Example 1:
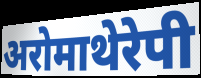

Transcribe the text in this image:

अरोमाथेरेपी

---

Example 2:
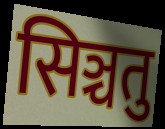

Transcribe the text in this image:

सिञ्चतु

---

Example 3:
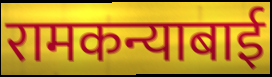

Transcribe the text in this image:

रामकन्याबाई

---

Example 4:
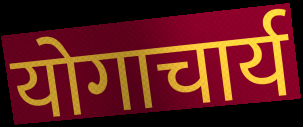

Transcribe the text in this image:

योगाचार्य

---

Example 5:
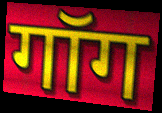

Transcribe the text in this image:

गॉग